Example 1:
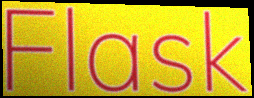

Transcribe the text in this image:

Flask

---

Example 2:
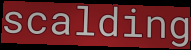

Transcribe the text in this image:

scalding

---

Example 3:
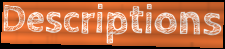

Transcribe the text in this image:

Descriptions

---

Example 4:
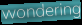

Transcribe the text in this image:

wondering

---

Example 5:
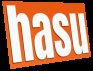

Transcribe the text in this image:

hasu